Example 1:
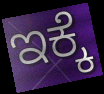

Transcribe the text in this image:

ಇಕ್ಕೆ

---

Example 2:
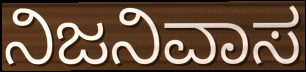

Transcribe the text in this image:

ನಿಜನಿವಾಸ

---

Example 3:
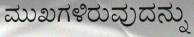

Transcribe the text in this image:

ಮುಖಗಳಿರುವುದನ್ನು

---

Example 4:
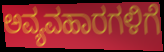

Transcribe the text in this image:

ಅವ್ಯವಹಾರಗಳಿಗೆ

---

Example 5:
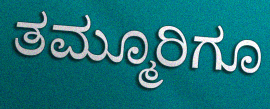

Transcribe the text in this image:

ತಮ್ಮೂರಿಗೂ